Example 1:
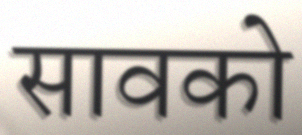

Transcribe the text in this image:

सावको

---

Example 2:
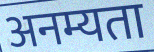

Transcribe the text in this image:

अनम्यता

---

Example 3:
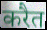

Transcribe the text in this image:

करैत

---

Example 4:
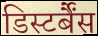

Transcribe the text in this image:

डिस्टर्बैंस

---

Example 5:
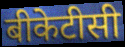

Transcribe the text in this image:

बीकेटीसी